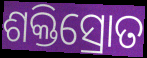
ଶକ୍ତିସ୍ରୋତ